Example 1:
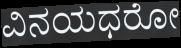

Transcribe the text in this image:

ವಿನಯಧರೋ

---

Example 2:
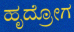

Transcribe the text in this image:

ಹೃದ್ರೋಗ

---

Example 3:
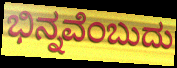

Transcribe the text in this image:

ಭಿನ್ನವೆಂಬುದು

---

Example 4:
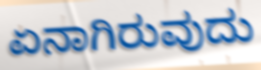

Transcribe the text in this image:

ಏನಾಗಿರುವುದು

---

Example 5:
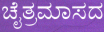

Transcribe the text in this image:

ಚೈತ್ರಮಾಸದ